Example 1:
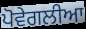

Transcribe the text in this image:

ਪੋਵੇਗਲੀਆ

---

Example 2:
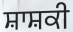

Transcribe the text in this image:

ਸ਼ਾਸ਼ਕੀ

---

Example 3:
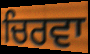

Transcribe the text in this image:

ਚਿਰਵਾ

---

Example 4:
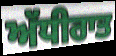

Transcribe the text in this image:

ਅੱਧੀਰਾਤ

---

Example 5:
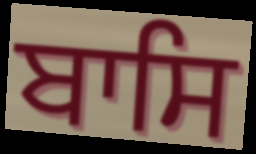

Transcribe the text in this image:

ਬਾਸਿ